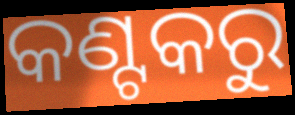
କଣ୍ଟକରୁ